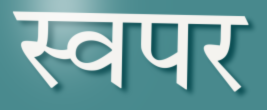
स्वपर